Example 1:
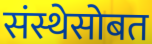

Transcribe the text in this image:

संस्थेसोबत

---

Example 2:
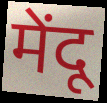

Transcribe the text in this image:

मेंदू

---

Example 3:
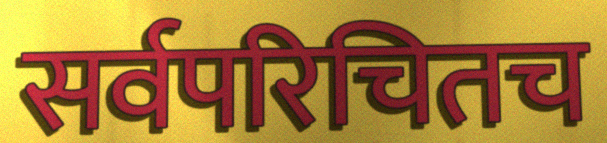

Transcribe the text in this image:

सर्वपरिचितच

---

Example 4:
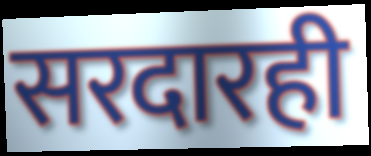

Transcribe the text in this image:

सरदारही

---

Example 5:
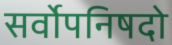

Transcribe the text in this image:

सर्वोपनिषदो